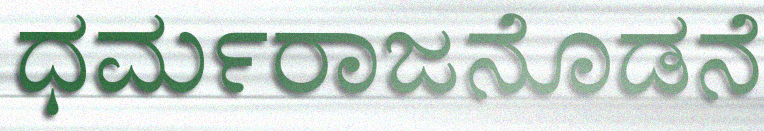
ಧರ್ಮರಾಜನೊಡನೆ